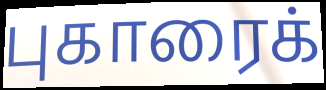
புகாரைக்